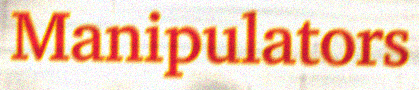
Manipulators